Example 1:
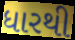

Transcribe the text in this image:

ધારથી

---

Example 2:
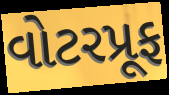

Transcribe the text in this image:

વોટરપ્રૂફ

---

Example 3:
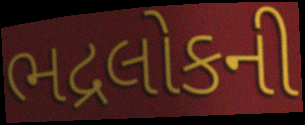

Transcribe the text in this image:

ભદ્રલોકની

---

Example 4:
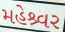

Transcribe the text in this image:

મહેશ્ર્વર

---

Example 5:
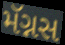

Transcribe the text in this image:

મૅગ્નસ